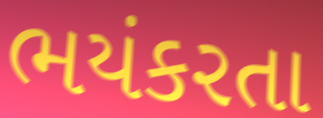
ભયંકરતા